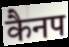
कैनप